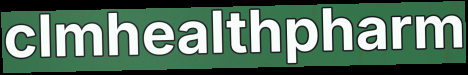
clmhealthpharm